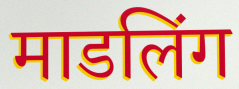
माडलिंग